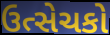
ઉત્સેચકો